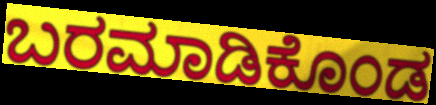
ಬರಮಾಡಿಕೊಂಡ